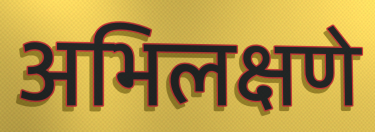
अभिलक्षणे